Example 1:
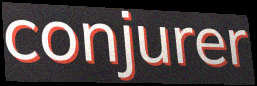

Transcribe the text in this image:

conjurer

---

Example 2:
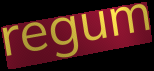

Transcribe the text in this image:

regum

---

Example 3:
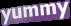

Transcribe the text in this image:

yummy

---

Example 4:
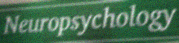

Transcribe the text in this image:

Neuropsychology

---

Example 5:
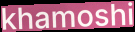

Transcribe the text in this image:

khamoshi